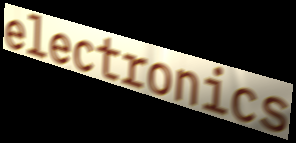
electronics